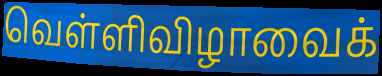
வெள்ளிவிழாவைக்